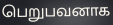
பெறுபவனாக